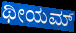
ಥೀಯಮ್